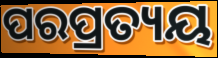
ପରପ୍ରତ୍ୟୟ